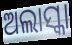
ଅଲାସ୍କା